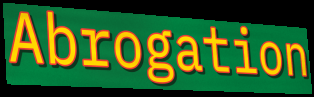
Abrogation